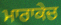
ਮਾਰਾਕੇਚ